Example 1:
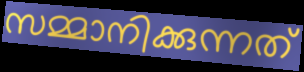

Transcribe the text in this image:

സമ്മാനിക്കുന്നത്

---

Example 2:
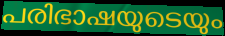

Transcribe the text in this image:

പരിഭാഷയുടെയും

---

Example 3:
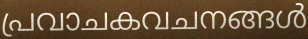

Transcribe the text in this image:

പ്രവാചകവചനങ്ങൾ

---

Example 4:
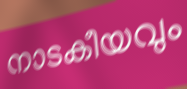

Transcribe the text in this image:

നാടകീയവും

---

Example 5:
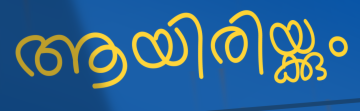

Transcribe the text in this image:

ആയിരിയ്ക്കും